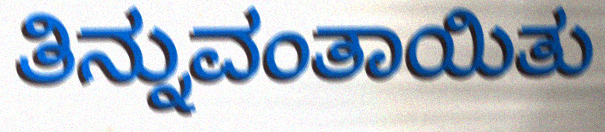
ತಿನ್ನುವಂತಾಯಿತು